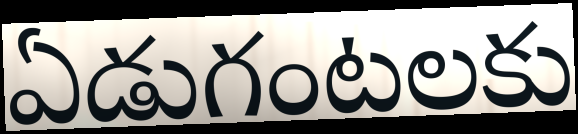
ఏడుగంటలకు